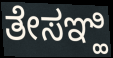
ತೇಸಞ್ಹಿ